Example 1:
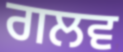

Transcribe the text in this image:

ਗਲਵ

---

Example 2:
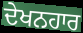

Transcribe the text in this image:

ਦੇਖਨਹਾਰ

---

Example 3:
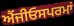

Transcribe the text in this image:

ਐਂਜੀਓਸਪਰਮਾਂ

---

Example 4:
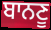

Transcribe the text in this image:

ਬਾਨਣੂ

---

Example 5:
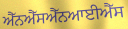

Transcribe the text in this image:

ਐੱਨਐੱਸਐੱਨਆਈਐੱਸ